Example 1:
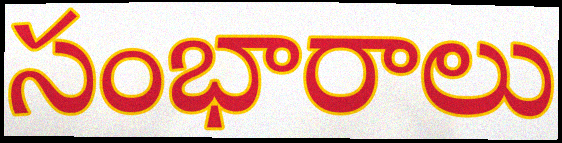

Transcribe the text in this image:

సంభారాలు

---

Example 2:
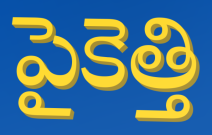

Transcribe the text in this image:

పైకెత్తి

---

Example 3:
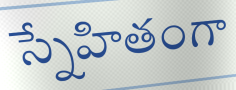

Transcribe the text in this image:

స్నేహితంగా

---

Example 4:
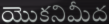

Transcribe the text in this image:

యొకనిమీద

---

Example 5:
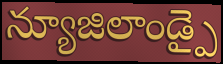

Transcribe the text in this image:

న్యూజిలాండ్పై